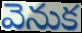
వెనుక